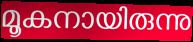
മൂകനായിരുന്നു